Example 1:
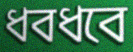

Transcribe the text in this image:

ধবধবে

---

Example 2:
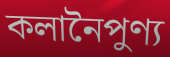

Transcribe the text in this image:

কলানৈপুণ্য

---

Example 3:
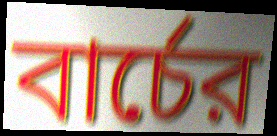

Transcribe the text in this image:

বার্চের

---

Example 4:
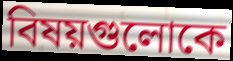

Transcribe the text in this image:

বিষয়গুলোকে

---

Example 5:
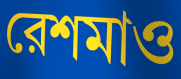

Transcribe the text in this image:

রেশমাও